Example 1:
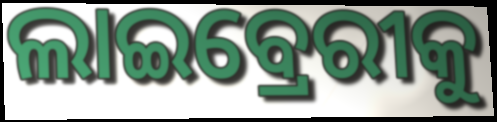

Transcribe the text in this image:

ଲାଇବ୍ରେରୀକୁ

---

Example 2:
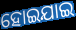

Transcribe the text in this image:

ହୋଇଯାଇ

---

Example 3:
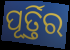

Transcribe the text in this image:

ପୂର୍ତ୍ତିର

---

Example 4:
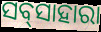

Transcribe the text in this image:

ସବ୍‌ସାହାରା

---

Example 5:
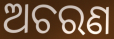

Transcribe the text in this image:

ଅଚରଣ